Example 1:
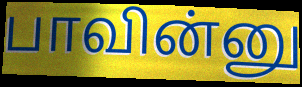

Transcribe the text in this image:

பாவின்னு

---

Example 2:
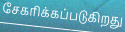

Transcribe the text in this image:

சேகரிக்கப்படுகிறது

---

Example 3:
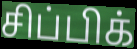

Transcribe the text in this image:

சிப்பிக்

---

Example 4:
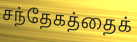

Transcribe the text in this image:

சந்தேகத்தைக்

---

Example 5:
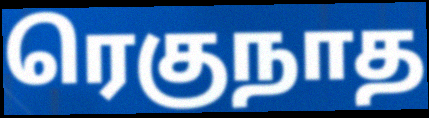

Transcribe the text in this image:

ரெகுநாத